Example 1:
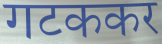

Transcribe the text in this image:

गटककर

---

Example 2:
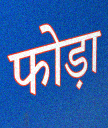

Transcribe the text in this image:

फोड़ा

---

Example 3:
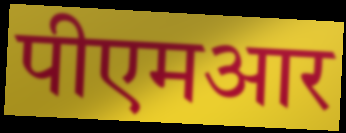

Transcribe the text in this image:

पीएमआर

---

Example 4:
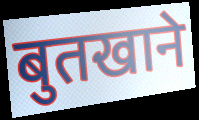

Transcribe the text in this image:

बुतखाने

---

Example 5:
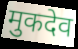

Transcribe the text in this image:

मुकदेव